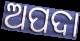
ଅପଦା